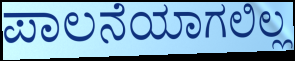
ಪಾಲನೆಯಾಗಲಿಲ್ಲ